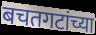
बचतगटांच्या